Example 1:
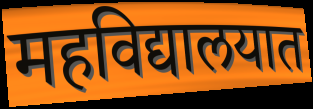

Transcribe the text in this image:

महविद्यालयात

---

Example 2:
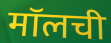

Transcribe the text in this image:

मॉलची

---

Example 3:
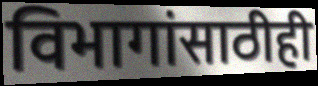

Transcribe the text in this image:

विभागांसाठीही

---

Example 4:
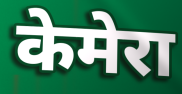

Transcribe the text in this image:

केमेरा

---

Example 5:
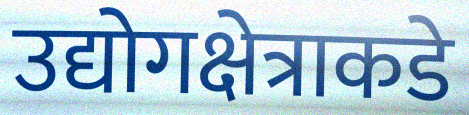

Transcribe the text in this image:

उद्योगक्षेत्राकडे